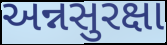
અન્નસુરક્ષા